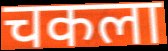
चकला